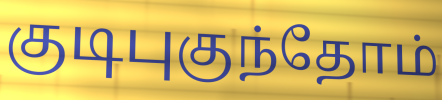
குடிபுகுந்தோம்